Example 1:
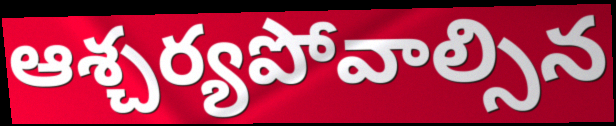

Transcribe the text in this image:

ఆశ్చర్యపోవాల్సిన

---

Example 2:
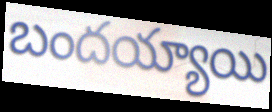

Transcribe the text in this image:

బందయ్యాయి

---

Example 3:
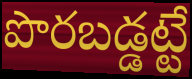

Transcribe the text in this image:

పొరబడ్డట్టే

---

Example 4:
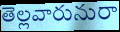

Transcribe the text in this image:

తెల్లవారునురా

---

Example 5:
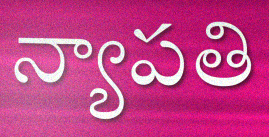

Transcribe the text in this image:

న్యాపతి